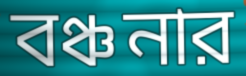
বঞ্চনার